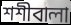
শশীবালা